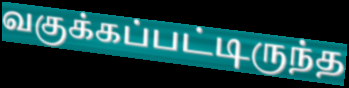
வகுக்கப்பட்டிருந்த